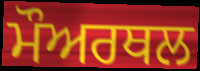
ਮੌਅਰਥਲ